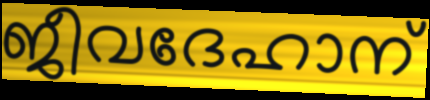
ജീവദേഹാന്